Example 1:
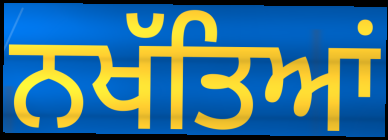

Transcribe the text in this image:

ਨਖੱਤਿਆਂ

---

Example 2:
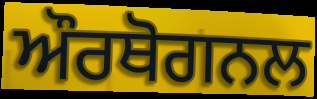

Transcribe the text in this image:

ਔਰਥੋਗਨਲ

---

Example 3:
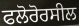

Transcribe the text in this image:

ਫਲੋਰੋਰਸੀਲ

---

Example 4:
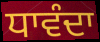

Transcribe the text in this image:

ਧਾਵੰਦਾ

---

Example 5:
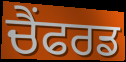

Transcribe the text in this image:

ਚੈਂਫਰਡ